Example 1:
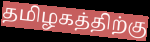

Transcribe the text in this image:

தமிழகத்திற்கு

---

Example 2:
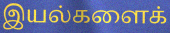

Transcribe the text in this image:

இயல்களைக்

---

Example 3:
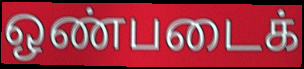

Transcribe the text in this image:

ஒண்படைக்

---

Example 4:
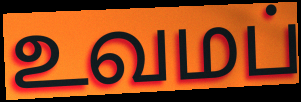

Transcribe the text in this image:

உவமப்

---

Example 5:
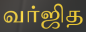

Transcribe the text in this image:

வர்ஜித